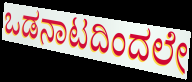
ಒಡನಾಟದಿಂದಲೇ